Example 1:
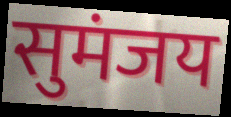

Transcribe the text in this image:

सुमंजय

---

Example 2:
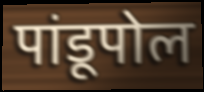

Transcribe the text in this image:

पांडूपोल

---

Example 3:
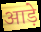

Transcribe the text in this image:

आड़े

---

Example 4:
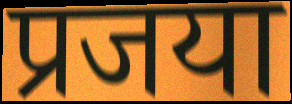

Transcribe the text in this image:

प्रजया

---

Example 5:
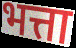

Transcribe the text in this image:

भत्ता